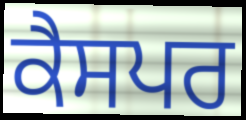
ਕੈਸਪਰ